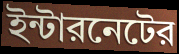
ইন্টারনেটের